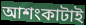
আশংকাটাই